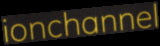
ionchannel